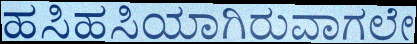
ಹಸಿಹಸಿಯಾಗಿರುವಾಗಲೇ